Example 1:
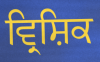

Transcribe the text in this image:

ਵ੍ਰਿਸ਼ਿਕ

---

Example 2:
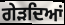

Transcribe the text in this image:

ਗੇੜਦਿਆਂ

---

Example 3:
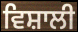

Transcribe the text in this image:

ਵਿਸ਼ਾਲੀ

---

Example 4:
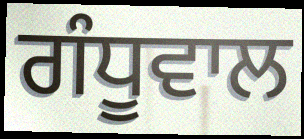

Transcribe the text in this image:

ਗੰਧੂਵਾਲ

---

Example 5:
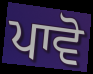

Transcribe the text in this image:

ਪਾਵੋ